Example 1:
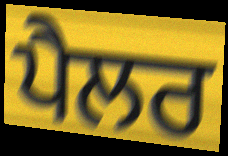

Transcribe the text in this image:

ਪੈਲਰ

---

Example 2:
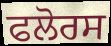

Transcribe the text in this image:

ਫਲੋਰਸ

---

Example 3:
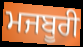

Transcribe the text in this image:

ਮਜਬੂਰੀ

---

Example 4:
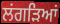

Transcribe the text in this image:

ਲਂਗੜਿਆਂ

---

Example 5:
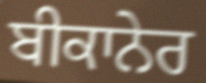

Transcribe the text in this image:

ਬੀਕਾਨੇਰ